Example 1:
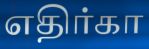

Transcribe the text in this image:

எதிர்கா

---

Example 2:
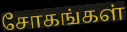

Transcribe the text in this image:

சோகங்கள்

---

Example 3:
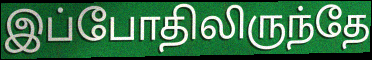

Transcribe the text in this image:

இப்போதிலிருந்தே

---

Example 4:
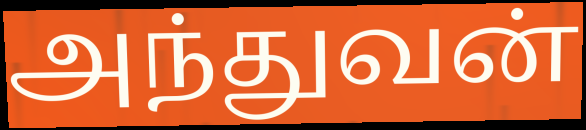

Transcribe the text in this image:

அந்துவன்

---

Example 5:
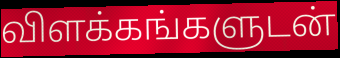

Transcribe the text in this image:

விளக்கங்களுடன்